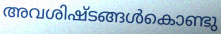
അവശിഷ്ടങ്ങൾകൊണ്ടു